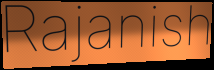
Rajanish